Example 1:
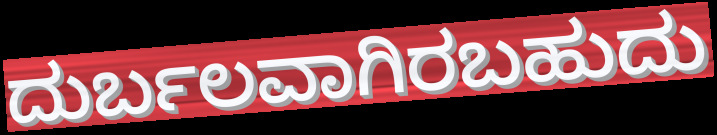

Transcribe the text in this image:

ದುರ್ಬಲವಾಗಿರಬಹುದು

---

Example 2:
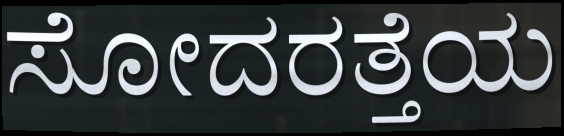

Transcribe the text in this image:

ಸೋದರತ್ತೆಯ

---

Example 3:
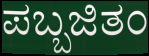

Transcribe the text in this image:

ಪಬ್ಬಜಿತಂ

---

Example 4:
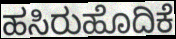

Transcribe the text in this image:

ಹಸಿರುಹೊದಿಕೆ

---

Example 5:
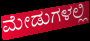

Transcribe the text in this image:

ಮೇಡುಗಳಲ್ಲಿ